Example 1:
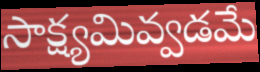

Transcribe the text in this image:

సాక్ష్యమివ్వడమే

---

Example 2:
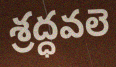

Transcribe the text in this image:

శ్రద్ధవలె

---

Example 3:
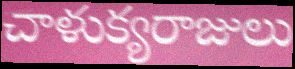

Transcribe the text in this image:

చాళుక్యరాజులు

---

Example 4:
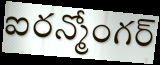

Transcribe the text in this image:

ఐరన్మోంగర్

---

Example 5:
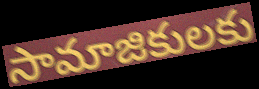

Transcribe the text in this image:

సామాజికులకు